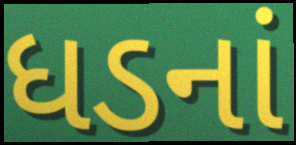
ધડનાં